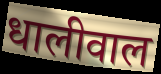
धालीवाल